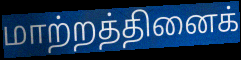
மாற்றத்தினைக்